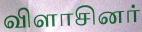
விளாசினர்